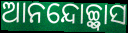
ଆନନ୍ଦୋଚ୍ଛ୍ୱାସ